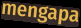
mengapa